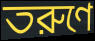
তৰুণে